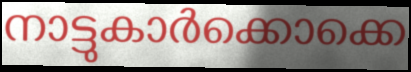
നാട്ടുകാർക്കൊക്കെ